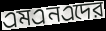
এমএনএদের